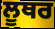
ਲੂਥਰ